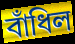
বাঁধিল